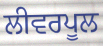
ਲੀਵਰਪੂਲ